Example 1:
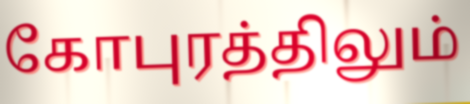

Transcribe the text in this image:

கோபுரத்திலும்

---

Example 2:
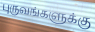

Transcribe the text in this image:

புருவங்களுக்கு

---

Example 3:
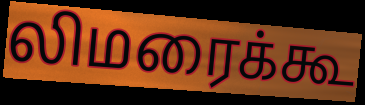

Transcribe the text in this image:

லிமரைக்கூ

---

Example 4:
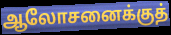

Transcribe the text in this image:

ஆலோசனைக்குத்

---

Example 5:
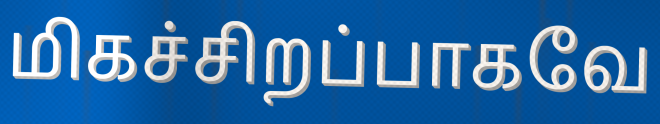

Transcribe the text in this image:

மிகச்சிறப்பாகவே